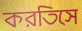
করতিসে